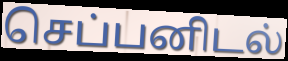
செப்பனிடல்